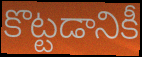
కొట్టడానికీ